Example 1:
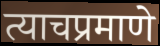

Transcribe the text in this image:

त्याचप्रमाणे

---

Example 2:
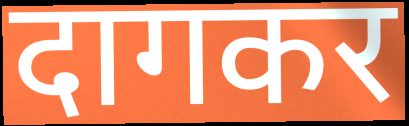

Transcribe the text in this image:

दागकर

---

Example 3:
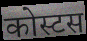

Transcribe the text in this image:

कोस्टस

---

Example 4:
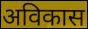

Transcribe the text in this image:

अविकास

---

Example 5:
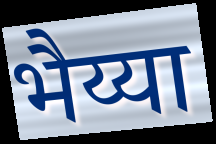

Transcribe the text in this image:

भैय्या